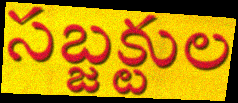
సబ్జక్టుల